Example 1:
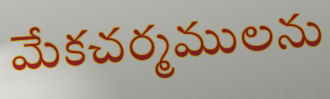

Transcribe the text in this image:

మేకచర్మములను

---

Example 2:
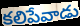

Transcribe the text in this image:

కలిపేవాడు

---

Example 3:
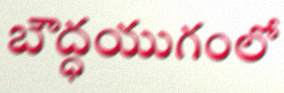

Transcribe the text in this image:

బౌద్ధయుగంలో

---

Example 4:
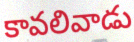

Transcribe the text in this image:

కావలివాడు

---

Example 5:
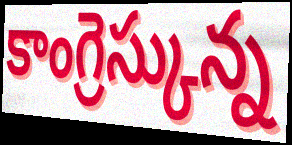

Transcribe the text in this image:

కాంగ్రెస్కున్న